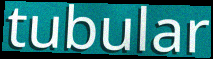
tubular